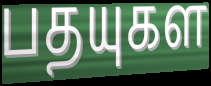
பதயுகள